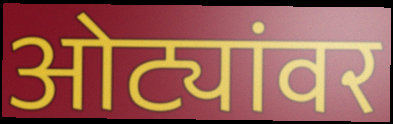
ओट्यांवर